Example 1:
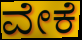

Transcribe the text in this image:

ವೇಕೆ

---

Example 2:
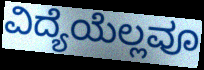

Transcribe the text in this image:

ವಿದ್ಯೆಯೆಲ್ಲವೂ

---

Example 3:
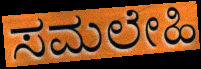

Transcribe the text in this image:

ಸಮಲೇಹಿ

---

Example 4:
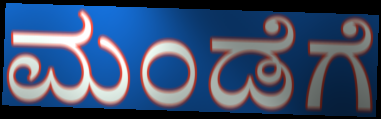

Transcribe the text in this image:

ಮಂಡೆಗೆ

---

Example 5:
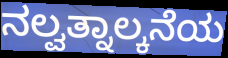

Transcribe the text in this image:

ನಲ್ವತ್ನಾಲ್ಕನೆಯ